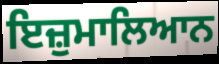
ਇਜ਼ੁਮਾਲਿਆਨ